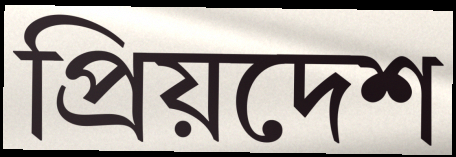
প্রিয়দেশ